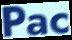
Pac